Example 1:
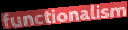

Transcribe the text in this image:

functionalism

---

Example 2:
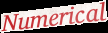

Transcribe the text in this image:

Numerical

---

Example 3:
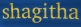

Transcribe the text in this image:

shagitha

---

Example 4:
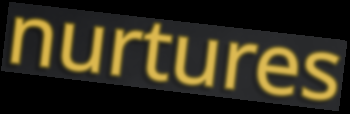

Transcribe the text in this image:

nurtures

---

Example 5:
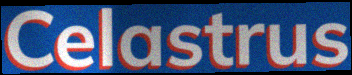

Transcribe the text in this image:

Celastrus